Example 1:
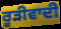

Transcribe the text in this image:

ਰੂੜੀਵਾਦੀ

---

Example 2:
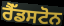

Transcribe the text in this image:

ਰੈੱਡਸਟੋਨ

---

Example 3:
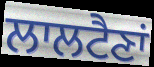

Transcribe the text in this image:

ਲਾਲਟੈਣਾਂ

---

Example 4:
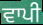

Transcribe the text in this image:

ਵਾਪੀ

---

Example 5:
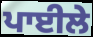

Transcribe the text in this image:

ਪਾਈਲੇ